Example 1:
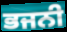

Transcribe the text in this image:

ਭਜਨੀ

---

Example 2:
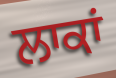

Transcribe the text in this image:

ਲਾਕਾਂ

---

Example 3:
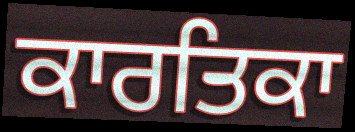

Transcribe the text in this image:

ਕਾਰਤਿਕਾ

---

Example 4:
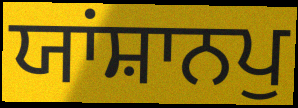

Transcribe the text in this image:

ਯਾਂਸ਼ਾਨਪੁ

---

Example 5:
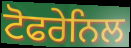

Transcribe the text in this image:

ਟੋਫਰੇਨਿਲ